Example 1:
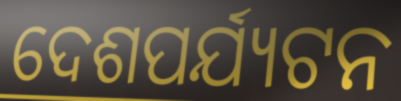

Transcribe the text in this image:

ଦେଶପର୍ଯ୍ୟଟନ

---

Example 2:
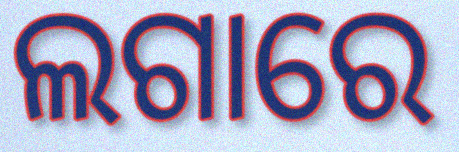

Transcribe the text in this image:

ଲଗାରେ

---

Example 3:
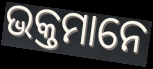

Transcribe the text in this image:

ଭକ୍ତମାନେ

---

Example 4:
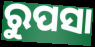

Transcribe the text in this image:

ରୁପସା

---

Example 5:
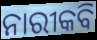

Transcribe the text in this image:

ନାରୀକବି